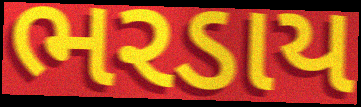
ભરડાય